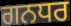
ਗਨਧਰ